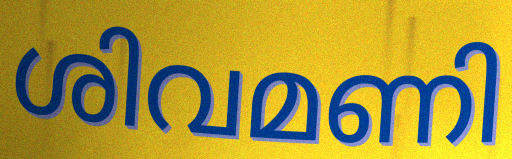
ശിവമണി